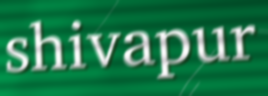
shivapur